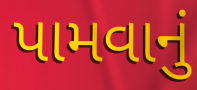
પામવાનું